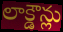
లాక్డౌన్లు